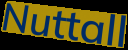
Nuttall